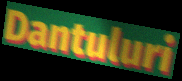
Dantuluri